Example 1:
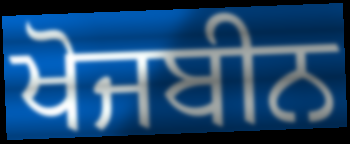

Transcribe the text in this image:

ਖੋਜਬੀਨ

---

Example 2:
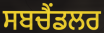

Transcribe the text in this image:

ਸਬਚੈਂਡਲਰ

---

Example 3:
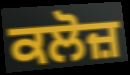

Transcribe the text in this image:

ਕਲੋਜ਼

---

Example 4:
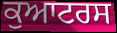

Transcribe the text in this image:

ਕੁਆਟਰਸ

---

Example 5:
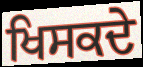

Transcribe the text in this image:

ਖਿਸਕਦੇ